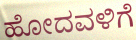
ಹೋದವಳಿಗೆ